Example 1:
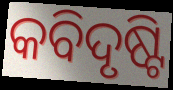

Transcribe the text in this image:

କବିଦୃଷ୍ଟି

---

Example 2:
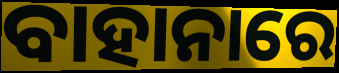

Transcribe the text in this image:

ବାହାନାରେ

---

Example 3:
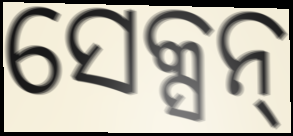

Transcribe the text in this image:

ସେକ୍ସନ୍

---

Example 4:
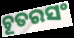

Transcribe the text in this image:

ଚୂତରସଂ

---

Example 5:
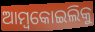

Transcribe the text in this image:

ଆମ୍ବକୋଇଲିକୁ